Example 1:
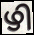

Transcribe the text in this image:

ഴി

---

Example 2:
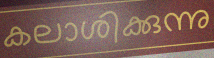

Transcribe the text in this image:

കലാശിക്കുന്നു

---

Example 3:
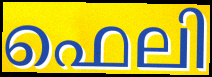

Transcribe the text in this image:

ഫെലി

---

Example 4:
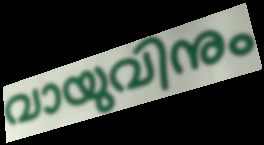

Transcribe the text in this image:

വായുവിനും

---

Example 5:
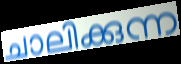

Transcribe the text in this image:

ചാലിക്കുന്ന